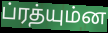
ப்ரத்யும்ன